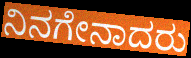
ನಿನಗೇನಾದರು